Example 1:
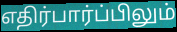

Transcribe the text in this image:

எதிர்பார்ப்பிலும்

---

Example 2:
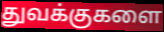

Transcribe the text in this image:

துவக்குகளை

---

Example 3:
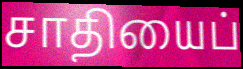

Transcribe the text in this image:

சாதியைப்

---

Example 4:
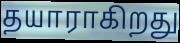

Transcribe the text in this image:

தயாராகிறது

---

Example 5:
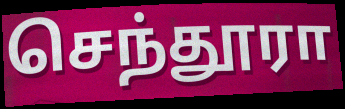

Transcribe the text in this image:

செந்தூரா